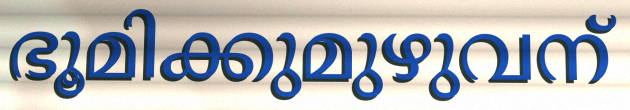
ഭൂമിക്കുമുഴുവന്